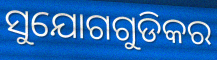
ସୁଯୋଗଗୁଡିକର